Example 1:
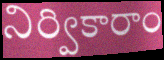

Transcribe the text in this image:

నిర్వికారాం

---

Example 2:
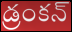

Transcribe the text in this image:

డ్రంకన్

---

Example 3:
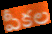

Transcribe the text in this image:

పీకల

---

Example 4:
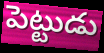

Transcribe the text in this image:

పెట్టుడు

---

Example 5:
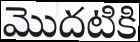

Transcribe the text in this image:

మొదటికి